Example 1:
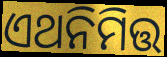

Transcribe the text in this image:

ଏଥନିମିତ୍ତ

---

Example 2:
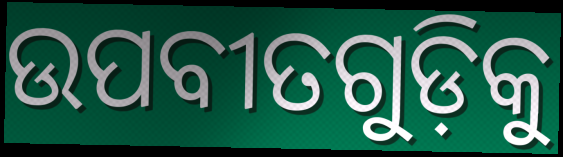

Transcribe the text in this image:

ଉପବୀତଗୁଡ଼ିକୁ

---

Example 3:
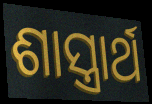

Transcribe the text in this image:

ଶାସ୍ତ୍ରାର୍ଥ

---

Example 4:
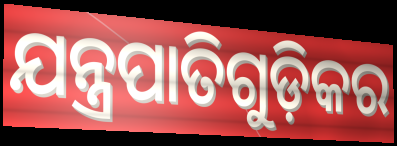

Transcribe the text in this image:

ଯନ୍ତ୍ରପାତିଗୁଡ଼ିକର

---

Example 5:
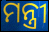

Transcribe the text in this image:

ମନ୍ତ୍ରୀ